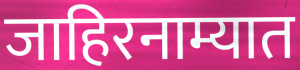
जाहिरनाम्यात